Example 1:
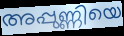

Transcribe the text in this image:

അപ്പുണ്ണിയെ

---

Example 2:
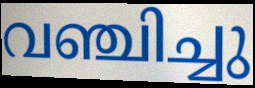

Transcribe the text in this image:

വഞ്ചിച്ചു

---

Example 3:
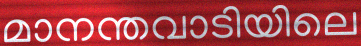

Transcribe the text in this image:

മാനന്തവാടിയിലെ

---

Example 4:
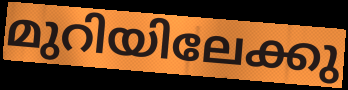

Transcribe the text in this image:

മുറിയിലേക്കു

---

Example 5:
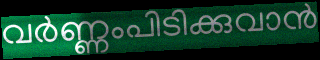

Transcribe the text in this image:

വർണ്ണംപിടിക്കുവാൻ